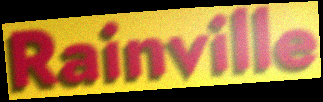
Rainville